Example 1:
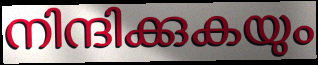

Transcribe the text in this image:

നിന്ദിക്കുകയും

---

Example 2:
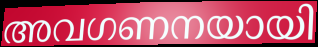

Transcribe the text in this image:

അവഗണനയായി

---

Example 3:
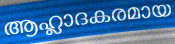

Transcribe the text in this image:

ആഹ്ലാദകരമായ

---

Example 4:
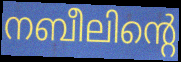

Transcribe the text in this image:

നബീലിന്റെ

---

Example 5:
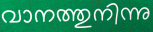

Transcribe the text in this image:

വാനത്തുനിന്നു